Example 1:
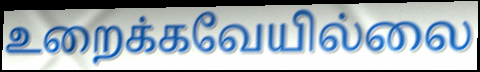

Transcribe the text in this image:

உறைக்கவேயில்லை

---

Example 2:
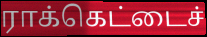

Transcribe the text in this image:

ராக்கெட்டைச்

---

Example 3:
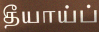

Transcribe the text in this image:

தீயாய்ப்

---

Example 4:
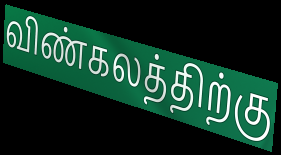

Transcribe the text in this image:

விண்கலத்திற்கு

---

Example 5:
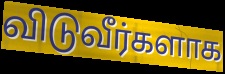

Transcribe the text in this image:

விடுவீர்களாக